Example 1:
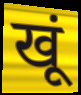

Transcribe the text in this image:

खूं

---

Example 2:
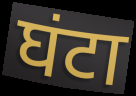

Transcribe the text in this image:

घंटा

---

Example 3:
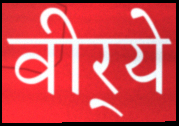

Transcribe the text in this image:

वीर्ये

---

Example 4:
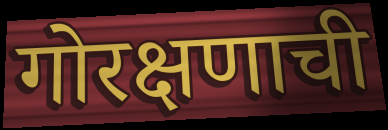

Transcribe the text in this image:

गोरक्षणाची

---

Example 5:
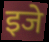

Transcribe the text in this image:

इजे